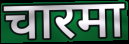
चारमा